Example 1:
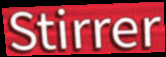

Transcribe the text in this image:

Stirrer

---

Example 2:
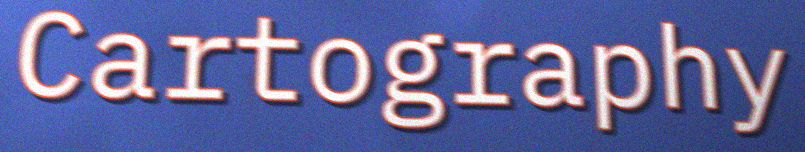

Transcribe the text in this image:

Cartography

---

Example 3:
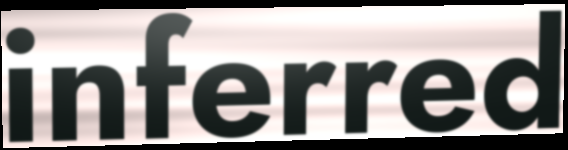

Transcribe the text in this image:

inferred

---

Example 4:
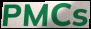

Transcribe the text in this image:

PMCs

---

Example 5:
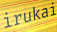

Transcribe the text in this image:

irukai